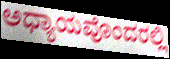
ಅಧ್ಯಾಯವೊಂದರಲ್ಲಿ